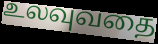
உலவுவதை